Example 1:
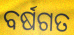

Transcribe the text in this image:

ବର୍ଷଗତ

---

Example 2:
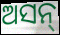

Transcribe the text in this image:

ଅସନ୍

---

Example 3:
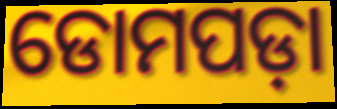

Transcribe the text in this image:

ଡୋମପଡ଼ା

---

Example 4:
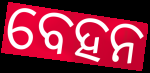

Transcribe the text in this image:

ବେହନ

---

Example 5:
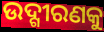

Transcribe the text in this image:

ଉଦ୍ଗୀରଣକୁ